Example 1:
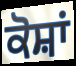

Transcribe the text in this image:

ਕੋਸ਼ਾਂ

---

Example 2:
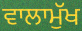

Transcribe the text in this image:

ਵਾਲਾਮੁੱਖ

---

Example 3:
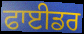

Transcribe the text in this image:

ਫਾਈਡਰ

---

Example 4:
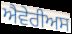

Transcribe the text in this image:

ਐਵੇਰੀਅਸ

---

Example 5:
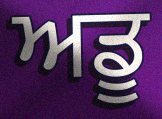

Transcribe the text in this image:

ਅਡੂ